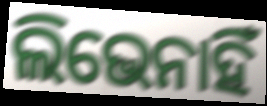
ଲିଭେନାହିଁ